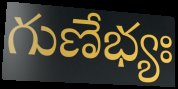
గుణేభ్యః